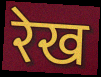
रेख